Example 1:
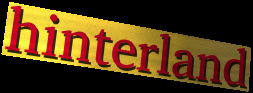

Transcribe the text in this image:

hinterland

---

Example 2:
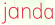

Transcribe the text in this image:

janda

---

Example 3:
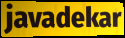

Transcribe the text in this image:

javadekar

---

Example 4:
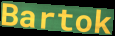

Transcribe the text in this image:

Bartok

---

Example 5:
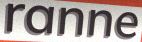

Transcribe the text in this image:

ranne